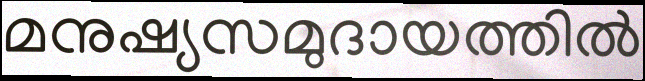
മനുഷ്യസമുദായത്തിൽ